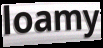
loamy